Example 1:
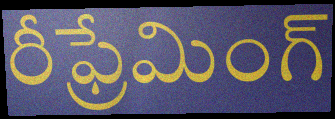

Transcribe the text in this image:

రీఫ్రేమింగ్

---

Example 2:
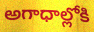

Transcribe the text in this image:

అగాధాల్లోకి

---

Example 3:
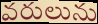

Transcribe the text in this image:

వరులును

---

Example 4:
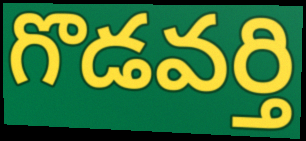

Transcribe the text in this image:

గొడవర్తి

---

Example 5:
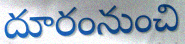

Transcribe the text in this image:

దూరంనుంచి